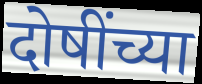
दोषींच्या